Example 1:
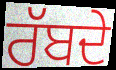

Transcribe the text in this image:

ਰੱਬਦੇ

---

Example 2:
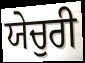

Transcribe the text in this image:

ਯੇਚੁਰੀ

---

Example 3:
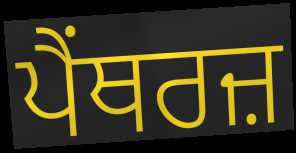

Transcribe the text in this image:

ਪੈਂਥਰਜ਼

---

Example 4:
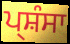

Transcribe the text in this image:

ਪ੍ਸ਼ੰਸਾ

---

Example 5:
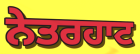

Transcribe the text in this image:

ਨੇਤਰਹਾਟ